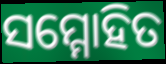
ସମ୍ମୋହିତ